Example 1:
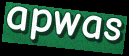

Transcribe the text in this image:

apwas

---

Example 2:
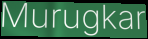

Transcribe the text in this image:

Murugkar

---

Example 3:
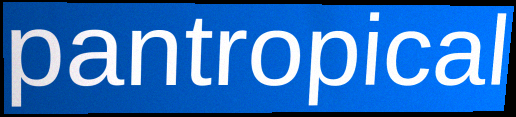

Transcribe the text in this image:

pantropical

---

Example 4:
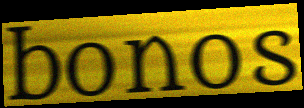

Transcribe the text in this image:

bonos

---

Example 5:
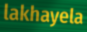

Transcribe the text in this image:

lakhayela